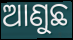
ଆଣୁଛ